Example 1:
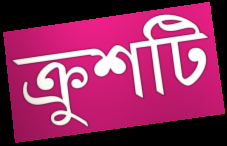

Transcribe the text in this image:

ক্রুশটি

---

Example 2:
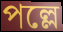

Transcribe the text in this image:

পল্লে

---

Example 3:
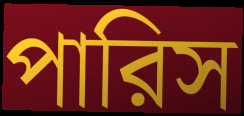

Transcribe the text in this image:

পারিস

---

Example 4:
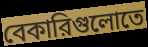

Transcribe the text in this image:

বেকারিগুলোতে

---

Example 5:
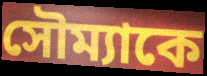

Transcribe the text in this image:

সৌম্যাকে